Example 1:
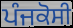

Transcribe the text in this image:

ਪੰਜਕੋਸੀ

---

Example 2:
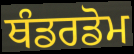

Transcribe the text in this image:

ਥੰਡਰਡੋਮ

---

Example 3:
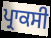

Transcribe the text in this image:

ਪ੍ਰਾਕਸੀ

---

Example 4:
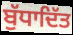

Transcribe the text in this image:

ਬੁੱਧਾਦਿੱਤ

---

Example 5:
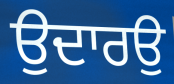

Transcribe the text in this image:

ਉਦਾਰਉ